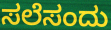
ಸಲೆಸಂದು